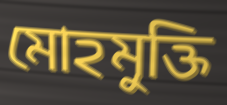
মোহমুক্তি